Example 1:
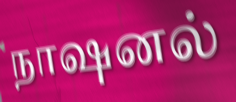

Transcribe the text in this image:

நாஷனல்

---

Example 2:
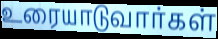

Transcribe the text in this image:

உரையாடுவார்கள்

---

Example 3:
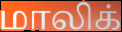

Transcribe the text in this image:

மாலிக்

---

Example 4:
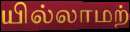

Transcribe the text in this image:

யில்லாமற்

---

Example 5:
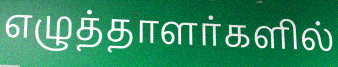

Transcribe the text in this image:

எழுத்தாளர்களில்